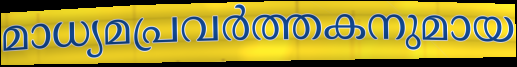
മാധ്യമപ്രവർത്തകനുമായ